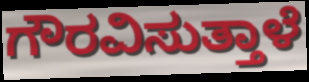
ಗೌರವಿಸುತ್ತಾಳೆ